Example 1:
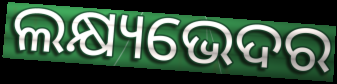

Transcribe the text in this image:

ଲକ୍ଷ୍ୟଭେଦର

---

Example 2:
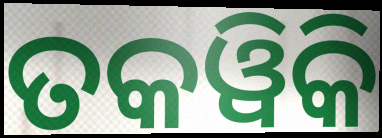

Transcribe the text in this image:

ତକୱିକି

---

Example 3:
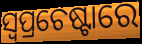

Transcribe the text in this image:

ସ୍ଵପ୍ରଚେଷ୍ଟାରେ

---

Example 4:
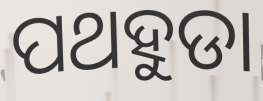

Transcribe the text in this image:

ପଥହୁଡା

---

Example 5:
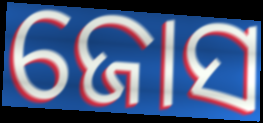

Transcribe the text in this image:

ଜୋସ